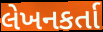
લેખનકર્તા